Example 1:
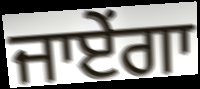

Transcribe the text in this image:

ਜਾਏਂਗਾ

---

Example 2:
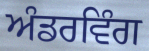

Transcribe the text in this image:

ਅੰਡਰਵਿੰਗ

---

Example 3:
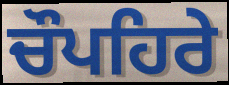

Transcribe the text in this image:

ਚੌਪਹਿਰੇ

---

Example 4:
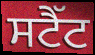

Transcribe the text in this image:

ਸਟੈੱਟ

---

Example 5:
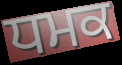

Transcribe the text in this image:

ਧਮਕ